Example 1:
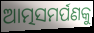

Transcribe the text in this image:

ଆତ୍ମସମର୍ପଣକୁ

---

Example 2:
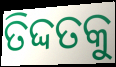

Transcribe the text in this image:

ତିଦ୍ଦତକୁ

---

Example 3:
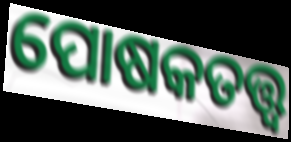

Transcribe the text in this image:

ପୋଷକତତ୍ତ୍ବ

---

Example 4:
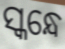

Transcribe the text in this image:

ସ୍କନ୍ଧେ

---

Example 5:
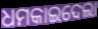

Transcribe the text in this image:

ଧମକାଇଦେଲା